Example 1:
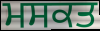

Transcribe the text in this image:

ਮਸਕਤ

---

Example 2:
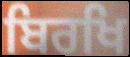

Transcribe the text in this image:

ਬਿਰਖਿ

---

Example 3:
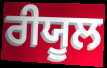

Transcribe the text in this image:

ਰੀਯੂਲ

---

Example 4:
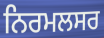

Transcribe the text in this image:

ਨਿਰਮਲਸਰ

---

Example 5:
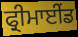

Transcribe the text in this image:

ਫ੍ਰੀਮਾਈਂਡ